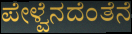
ಪೇಳ್ವೆನದೆಂತೆನೆ